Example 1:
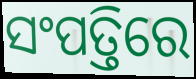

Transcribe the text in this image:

ସଂପତ୍ତିରେ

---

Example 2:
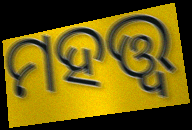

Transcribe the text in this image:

ମହତ୍ତ୍ବ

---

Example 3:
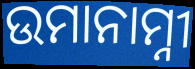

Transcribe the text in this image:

ଉମାନାମ୍ନୀ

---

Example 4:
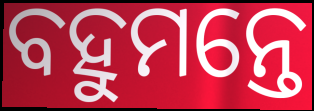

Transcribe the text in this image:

ବହୁମନ୍ତେ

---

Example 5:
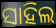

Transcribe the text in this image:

ସାହିଲ